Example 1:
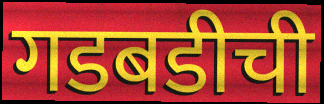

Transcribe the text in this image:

गडबडीची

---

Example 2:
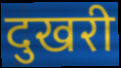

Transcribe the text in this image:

दुखरी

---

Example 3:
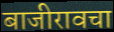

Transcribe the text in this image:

बाजीरावचा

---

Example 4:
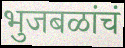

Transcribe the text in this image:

भुजबळांचं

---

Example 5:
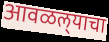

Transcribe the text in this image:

आवळल्याचा